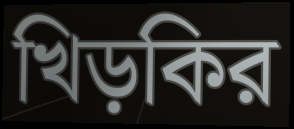
খিড়কির